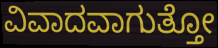
ವಿವಾದವಾಗುತ್ತೋ